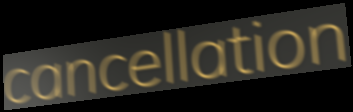
cancellation